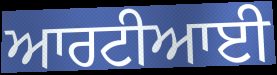
ਆਰਟੀਆਈ